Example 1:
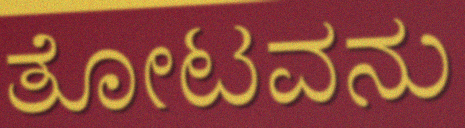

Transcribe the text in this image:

ತೋಟವನು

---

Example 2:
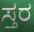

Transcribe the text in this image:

ಸ್ತರ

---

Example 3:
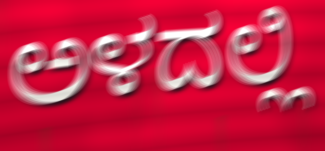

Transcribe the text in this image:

ಅಳದಲ್ಲಿ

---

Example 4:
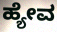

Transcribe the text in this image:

ಹ್ಯೇವ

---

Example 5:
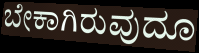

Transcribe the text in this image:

ಬೇಕಾಗಿರುವುದೂ